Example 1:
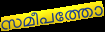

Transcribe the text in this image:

സമീപത്തോ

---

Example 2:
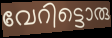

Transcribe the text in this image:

വേറിട്ടൊരു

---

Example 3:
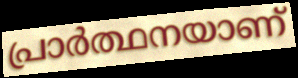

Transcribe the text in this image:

പ്രാർത്ഥനയാണ്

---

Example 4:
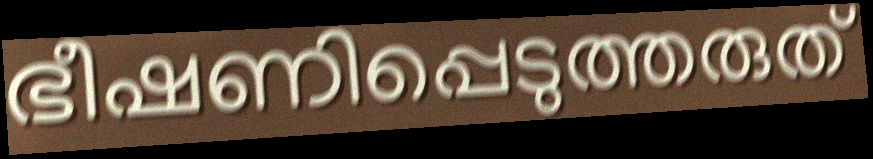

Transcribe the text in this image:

ഭീഷണിപ്പെടുത്തരുത്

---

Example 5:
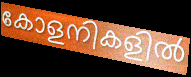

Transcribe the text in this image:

കോളനികളിൽ